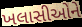
ખલાસીઓને